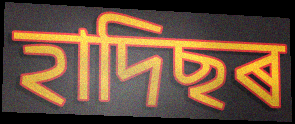
হাদিছৰ